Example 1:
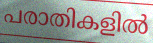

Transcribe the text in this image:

പരാതികളിൽ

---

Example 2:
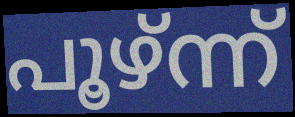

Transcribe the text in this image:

പൂഴ്ന്ന്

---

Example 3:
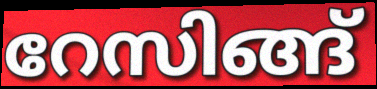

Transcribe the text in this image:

റേസിങ്ങ്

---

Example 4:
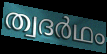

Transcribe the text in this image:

ത്വദർഥം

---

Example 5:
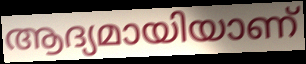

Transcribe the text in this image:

ആദ്യമായിയാണ്